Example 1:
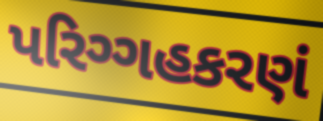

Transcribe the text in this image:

પરિગ્ગહકરણં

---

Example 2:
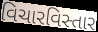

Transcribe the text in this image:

વિચારવિસ્તાર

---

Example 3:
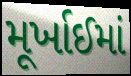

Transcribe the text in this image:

મૂર્ખાઈમાં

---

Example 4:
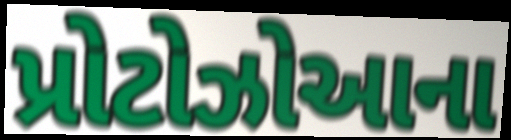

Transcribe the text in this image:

પ્રોટોઝોઆના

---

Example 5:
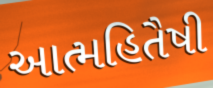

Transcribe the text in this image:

આત્મહિતૈષી